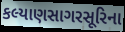
કલ્યાણસાગરસૂરિના